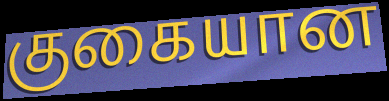
குகையான